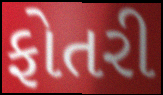
ફોતરી